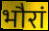
भौरां